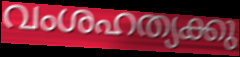
വംശഹത്യക്കു